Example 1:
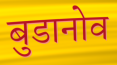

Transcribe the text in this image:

बुडानोव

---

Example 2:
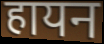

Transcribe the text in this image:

हायन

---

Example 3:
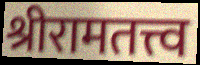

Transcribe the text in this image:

श्रीरामतत्त्व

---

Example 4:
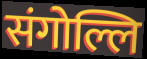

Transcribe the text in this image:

संगोल्लि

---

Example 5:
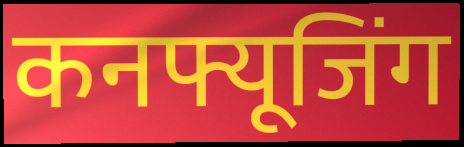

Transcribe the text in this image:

कनफ्यूजिंग